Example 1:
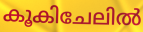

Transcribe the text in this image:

കൂകിചേലിൽ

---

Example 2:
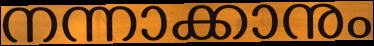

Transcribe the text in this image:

നന്നാക്കാനും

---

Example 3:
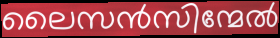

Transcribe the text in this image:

ലൈസൻസിന്മേൽ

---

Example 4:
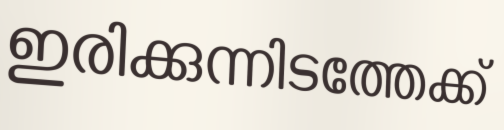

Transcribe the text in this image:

ഇരിക്കുന്നിടത്തേക്ക്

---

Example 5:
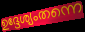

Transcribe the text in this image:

ഉദ്ദേശ്യംതന്നെ